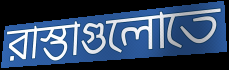
রাস্তাগুলোতে